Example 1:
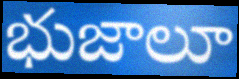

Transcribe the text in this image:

భుజాలూ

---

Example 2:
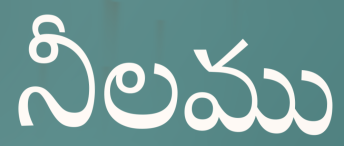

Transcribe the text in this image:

నీలము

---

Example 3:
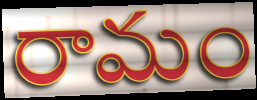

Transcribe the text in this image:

రామం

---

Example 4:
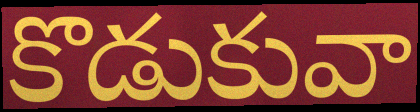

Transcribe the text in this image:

కొడుకువా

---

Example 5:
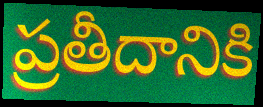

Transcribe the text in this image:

ప్రతీదానికి